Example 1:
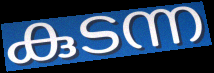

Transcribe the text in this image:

കുടന്ന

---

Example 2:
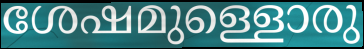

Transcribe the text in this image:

ശേഷമുള്ളൊരു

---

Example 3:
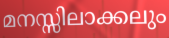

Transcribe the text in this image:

മനസ്സിലാക്കലും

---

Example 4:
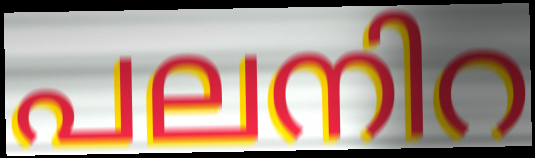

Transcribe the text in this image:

പലനിറ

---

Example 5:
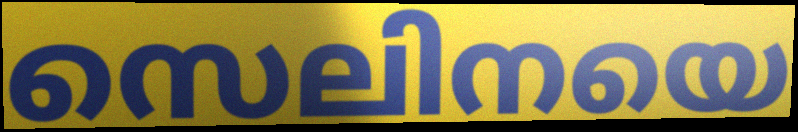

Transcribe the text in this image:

സെലിനയെ